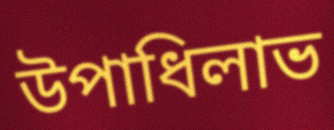
উপাধিলাভ